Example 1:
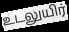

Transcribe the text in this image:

உடலுயிர்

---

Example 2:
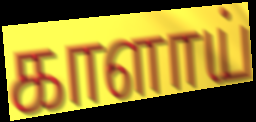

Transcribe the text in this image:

காளாய்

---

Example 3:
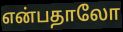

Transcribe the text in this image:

என்பதாலோ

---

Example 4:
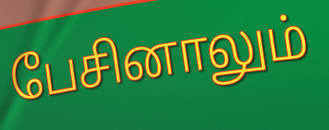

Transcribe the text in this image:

பேசினாலும்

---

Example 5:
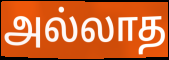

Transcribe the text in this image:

அல்லாத